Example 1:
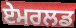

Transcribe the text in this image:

ਏਮਰਲਡ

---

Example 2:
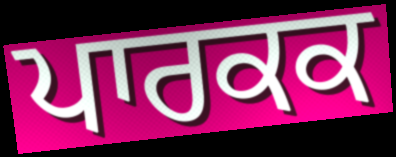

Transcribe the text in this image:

ਪਾਰਕਕ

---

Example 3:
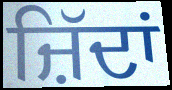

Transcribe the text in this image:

ਜ਼ਿੱਦਾਂ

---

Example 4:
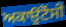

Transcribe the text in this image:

ਅਕਾਉਂਟੈਂਸੀ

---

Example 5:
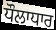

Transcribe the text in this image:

ਧੌਲਾਧਾਰ